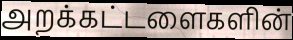
அறக்கட்டளைகளின்